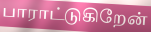
பாராட்டுகிறேன்